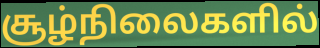
சூழ்நிலைகளில்